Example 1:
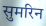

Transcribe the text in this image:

सुमरिन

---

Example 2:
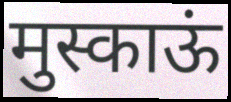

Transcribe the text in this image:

मुस्काऊं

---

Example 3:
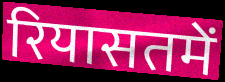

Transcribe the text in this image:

रियासतमें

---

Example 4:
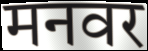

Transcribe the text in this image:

मनवर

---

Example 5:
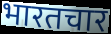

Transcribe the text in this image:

भारतचार